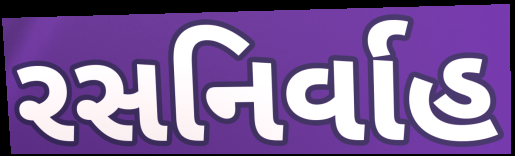
રસનિર્વાહ